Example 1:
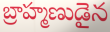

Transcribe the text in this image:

బ్రాహ్మణుడైన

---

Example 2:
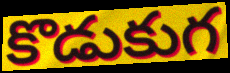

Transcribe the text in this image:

కొడుకుగ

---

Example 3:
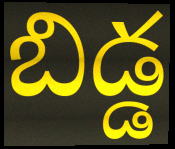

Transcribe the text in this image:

బిడ్డ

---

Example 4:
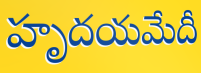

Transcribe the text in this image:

హృదయమేదీ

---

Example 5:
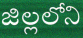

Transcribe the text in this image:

జిల్లలోని